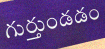
గుర్తుండడం